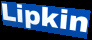
Lipkin